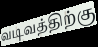
வடிவத்திற்கு